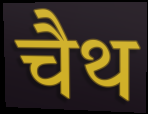
चैथ